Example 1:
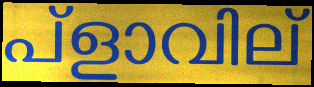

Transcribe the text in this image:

പ്ളാവില്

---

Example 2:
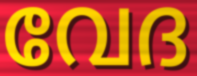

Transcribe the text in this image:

വേദ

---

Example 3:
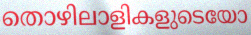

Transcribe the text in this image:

തൊഴിലാളികളുടെയോ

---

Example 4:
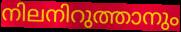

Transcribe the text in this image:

നിലനിറുത്താനും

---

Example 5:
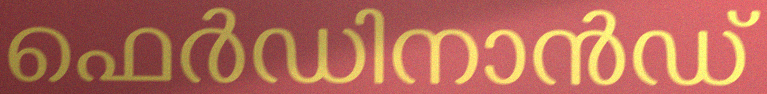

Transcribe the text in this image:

ഫെർഡിനാൻഡ്